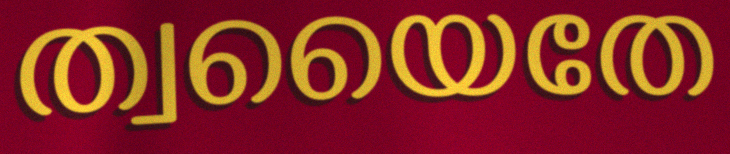
ത്വയൈതേ